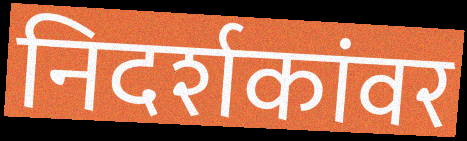
निदर्शकांवर